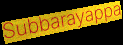
Subbarayappa